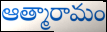
ఆత్మారామం